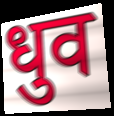
धुव